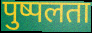
पुष्पलता